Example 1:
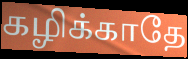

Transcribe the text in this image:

கழிக்காதே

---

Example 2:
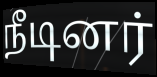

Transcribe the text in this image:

நீடினர்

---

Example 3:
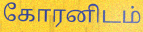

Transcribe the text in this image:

கோரனிடம்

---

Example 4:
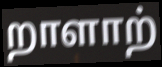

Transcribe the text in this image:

றாளாற்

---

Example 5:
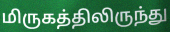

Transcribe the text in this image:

மிருகத்திலிருந்து